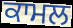
ਕਾਮਲ